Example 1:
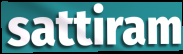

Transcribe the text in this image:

sattiram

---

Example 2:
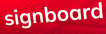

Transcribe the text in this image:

signboard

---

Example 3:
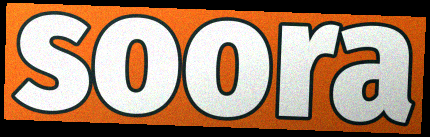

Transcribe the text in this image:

soora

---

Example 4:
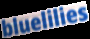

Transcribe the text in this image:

bluelilies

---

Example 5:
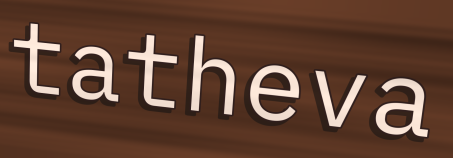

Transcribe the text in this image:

tatheva